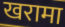
खरामा